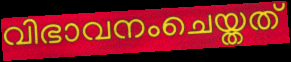
വിഭാവനംചെയ്തത്